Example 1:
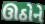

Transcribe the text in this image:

ઊઠોને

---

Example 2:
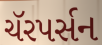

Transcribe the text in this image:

ચૅરપર્સન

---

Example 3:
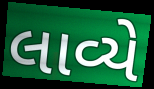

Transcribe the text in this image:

લાવ્યે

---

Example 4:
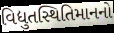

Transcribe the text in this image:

વિદ્યુતસ્થિતિમાનનો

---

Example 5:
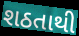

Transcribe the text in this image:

શઠતાથી